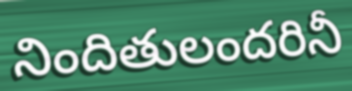
నిందితులందరినీ